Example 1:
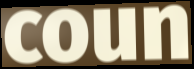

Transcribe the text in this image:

coun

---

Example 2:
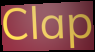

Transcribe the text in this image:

Clap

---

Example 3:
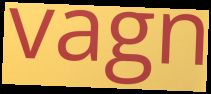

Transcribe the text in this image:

vagn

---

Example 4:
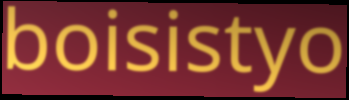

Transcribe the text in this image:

boisistyo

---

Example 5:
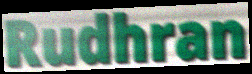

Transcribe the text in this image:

Rudhran